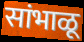
सांभाळू